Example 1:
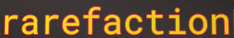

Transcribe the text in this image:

rarefaction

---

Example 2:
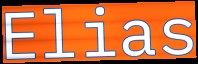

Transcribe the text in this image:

Elias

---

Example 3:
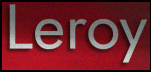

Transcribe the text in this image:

Leroy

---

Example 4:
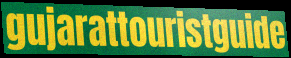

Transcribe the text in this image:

gujarattouristguide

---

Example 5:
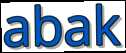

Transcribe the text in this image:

abak